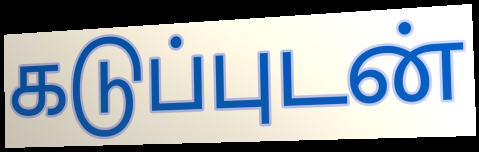
கடுப்புடன்